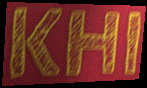
KHI